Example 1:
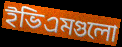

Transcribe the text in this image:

ইভিএমগুলো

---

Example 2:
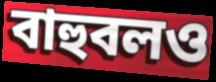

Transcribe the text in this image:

বাহুবলও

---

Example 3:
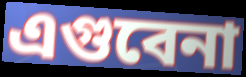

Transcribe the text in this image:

এগুবেনা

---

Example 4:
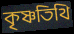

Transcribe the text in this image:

কৃষ্ণতিথি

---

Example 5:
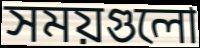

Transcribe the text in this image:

সময়গুলো